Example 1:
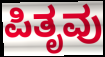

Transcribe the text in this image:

ಪಿತೃವು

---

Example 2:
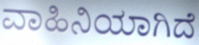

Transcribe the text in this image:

ವಾಹಿನಿಯಾಗಿದೆ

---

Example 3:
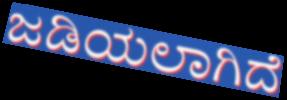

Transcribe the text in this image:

ಜಡಿಯಲಾಗಿದೆ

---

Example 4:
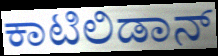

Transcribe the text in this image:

ಕಾಟಿಲಿಡಾನ್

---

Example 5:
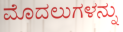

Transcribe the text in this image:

ಮೊದಲುಗಳನ್ನು